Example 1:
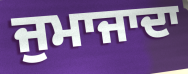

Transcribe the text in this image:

ਜੁਮਾਜਾਦਾ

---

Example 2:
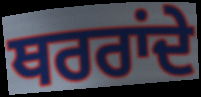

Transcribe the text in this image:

ਥਰਰਾਂਦੇ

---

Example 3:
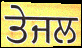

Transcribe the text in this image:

ਤੇਜਲ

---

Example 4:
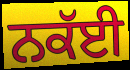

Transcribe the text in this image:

ਨਕੱਈ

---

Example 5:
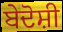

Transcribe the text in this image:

ਬੇਦੋਸ਼ੀ